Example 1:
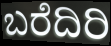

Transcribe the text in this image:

ಬರೆದಿರಿ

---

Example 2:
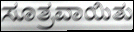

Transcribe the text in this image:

ಸೂತ್ರವಾಯಿತು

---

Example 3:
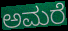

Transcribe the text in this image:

ಅಮರೆ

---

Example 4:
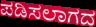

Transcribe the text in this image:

ಪಡಿಸಲಾಗದ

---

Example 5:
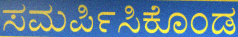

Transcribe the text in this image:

ಸಮರ್ಪಿಸಿಕೊಂಡ